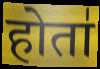
होता॑